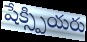
షేక్స్పియరు